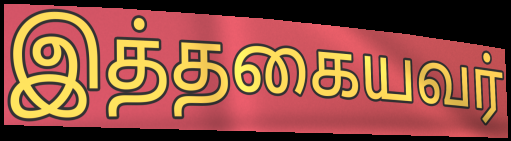
இத்தகையவர்